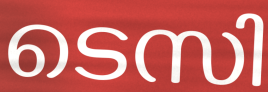
ടെസി